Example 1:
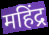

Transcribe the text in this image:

महिंद्र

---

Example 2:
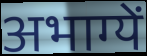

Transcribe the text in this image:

अभाग्यें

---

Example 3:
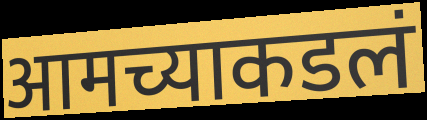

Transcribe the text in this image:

आमच्याकडलं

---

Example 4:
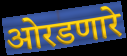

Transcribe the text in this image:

ओरडणारे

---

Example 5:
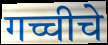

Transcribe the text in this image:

गच्चीचे